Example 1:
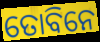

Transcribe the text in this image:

ତୋବିନେ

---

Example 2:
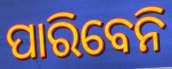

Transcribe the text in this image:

ପାରିବେନି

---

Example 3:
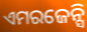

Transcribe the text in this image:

ଏମରଜେନ୍ସି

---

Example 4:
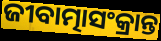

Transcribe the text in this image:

ଜୀବାତ୍ମାସଂକ୍ରାନ୍ତ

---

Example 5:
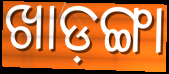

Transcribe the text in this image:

ଖାଡ଼ଙ୍ଗା